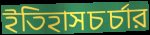
ইতিহাসচর্চার